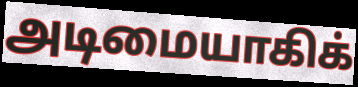
அடிமையாகிக்